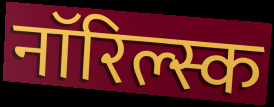
नॉरिल्स्क